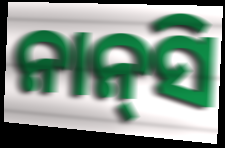
ନାନ୍‌ସି